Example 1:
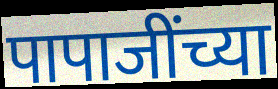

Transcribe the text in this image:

पापाजींच्या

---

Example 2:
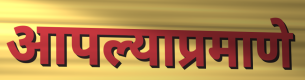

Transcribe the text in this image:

आपल्याप्रमाणे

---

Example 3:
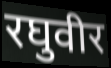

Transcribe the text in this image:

रघुवीर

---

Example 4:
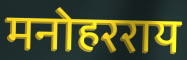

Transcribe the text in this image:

मनोहरराय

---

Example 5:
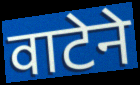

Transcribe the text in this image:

वाटेने